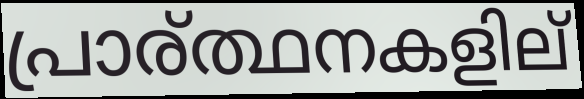
പ്രാര്ത്ഥനകളില്